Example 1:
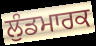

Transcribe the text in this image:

ਲੁੰਡਮਾਰਕ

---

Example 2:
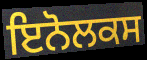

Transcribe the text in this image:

ਇਨੋਲਕਸ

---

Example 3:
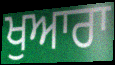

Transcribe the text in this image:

ਖੁਆਰਾ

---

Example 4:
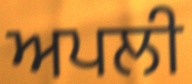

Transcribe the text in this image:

ਅਪਲੀ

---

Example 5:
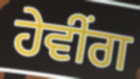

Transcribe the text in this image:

ਹੇਵੀੰਗ